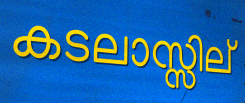
കടലാസ്സില്